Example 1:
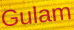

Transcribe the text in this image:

Gulam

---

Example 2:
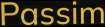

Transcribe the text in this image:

Passim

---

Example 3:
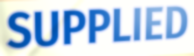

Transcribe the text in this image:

SUPPLIED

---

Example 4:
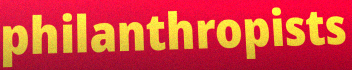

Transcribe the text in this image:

philanthropists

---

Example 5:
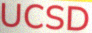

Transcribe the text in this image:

UCSD